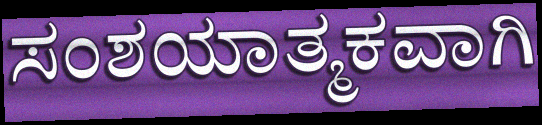
ಸಂಶಯಾತ್ಮಕವಾಗಿ